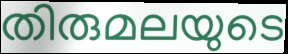
തിരുമലയുടെ